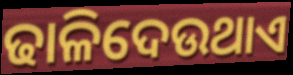
ଢାଳିଦେଉଥାଏ